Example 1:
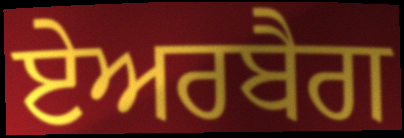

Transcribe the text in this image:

ਏਅਰਬੈਗ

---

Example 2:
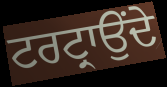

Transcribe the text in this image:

ਟਰਟ੍ਰਾਉਂਦੇ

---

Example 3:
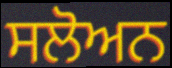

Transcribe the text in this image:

ਸਲੋਅਨ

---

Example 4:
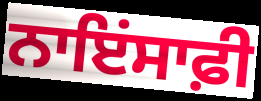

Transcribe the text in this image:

ਨਾਇਂਸਾਫ਼ੀ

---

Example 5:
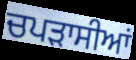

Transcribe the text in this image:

ਚਪੜਾਸੀਆਂ